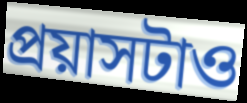
প্রয়াসটাও